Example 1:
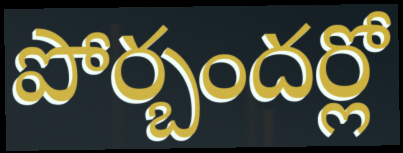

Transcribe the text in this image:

పోర్బందర్లో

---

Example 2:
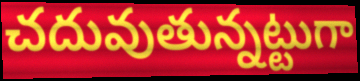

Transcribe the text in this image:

చదువుతున్నట్టుగా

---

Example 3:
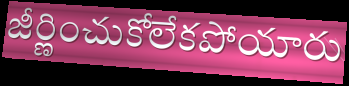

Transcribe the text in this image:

జీర్ణించుకోలేకపోయారు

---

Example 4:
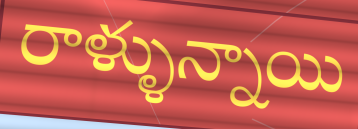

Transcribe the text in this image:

రాళ్ళున్నాయి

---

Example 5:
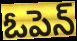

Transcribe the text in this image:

ఓపెన్